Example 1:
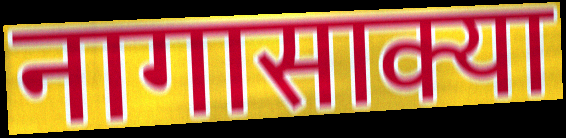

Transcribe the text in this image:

नागासाक्या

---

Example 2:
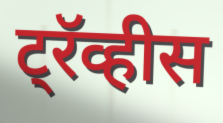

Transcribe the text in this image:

ट्रॅव्हीस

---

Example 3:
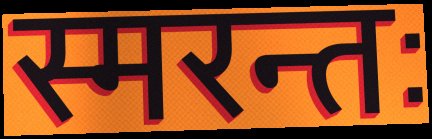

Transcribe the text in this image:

स्मरन्तः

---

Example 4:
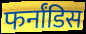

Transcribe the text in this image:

फर्नांडिस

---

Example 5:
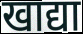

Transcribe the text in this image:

खाद्या